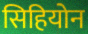
सिहियोन